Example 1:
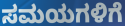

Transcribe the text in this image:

ಸಮಯಗಳಿಗೆ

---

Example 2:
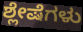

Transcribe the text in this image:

ಶ್ಲೇಷೆಗಳು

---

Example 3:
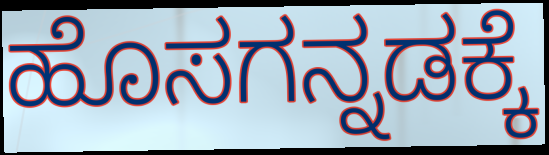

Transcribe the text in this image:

ಹೊಸಗನ್ನಡಕ್ಕೆ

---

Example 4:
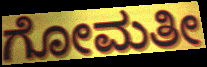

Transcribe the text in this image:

ಗೋಮತೀ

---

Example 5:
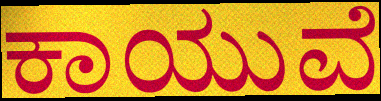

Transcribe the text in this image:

ಕಾಯುವೆ